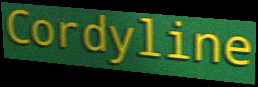
Cordyline